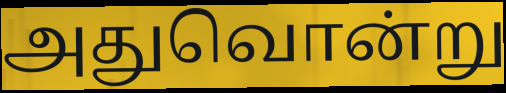
அதுவொன்று